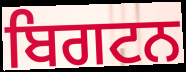
ਬਿਗਟਨ